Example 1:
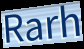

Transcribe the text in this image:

Rarh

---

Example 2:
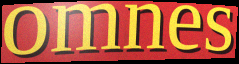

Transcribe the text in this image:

omnes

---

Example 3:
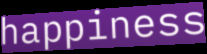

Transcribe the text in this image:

happiness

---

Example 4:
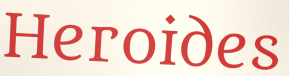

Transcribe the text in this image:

Heroides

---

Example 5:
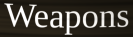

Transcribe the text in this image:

Weapons